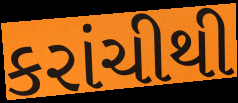
કરાંચીથી